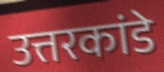
उत्तरकांडे